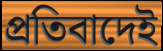
প্রতিবাদেই